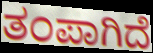
ತಂಪಾಗಿದೆ